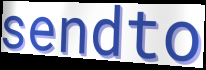
sendto